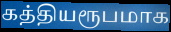
கத்தியரூபமாக